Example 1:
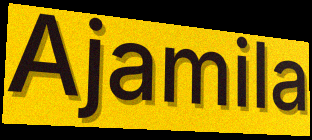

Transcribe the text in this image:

Ajamila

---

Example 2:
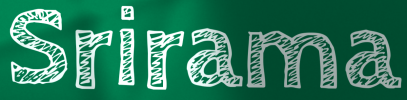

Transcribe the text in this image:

Srirama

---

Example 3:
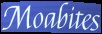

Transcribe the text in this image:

Moabites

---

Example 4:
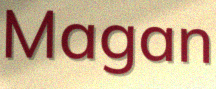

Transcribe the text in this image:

Magan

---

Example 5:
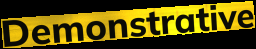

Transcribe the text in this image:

Demonstrative